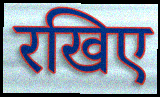
रखिए